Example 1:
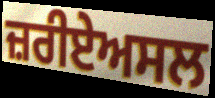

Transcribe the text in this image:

ਜ਼ਰੀਏਅਸਲ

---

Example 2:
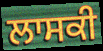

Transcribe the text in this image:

ਲਾਸਕੀ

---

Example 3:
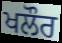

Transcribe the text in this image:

ਖਲੌਰ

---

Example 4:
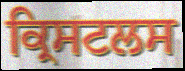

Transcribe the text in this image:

ਕ੍ਰਿਸਟਲਸ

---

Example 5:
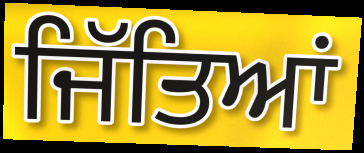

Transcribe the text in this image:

ਜਿੱਤਿਆਂ